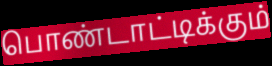
பொண்டாட்டிக்கும்